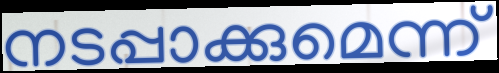
നടപ്പാക്കുമെന്ന്